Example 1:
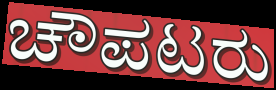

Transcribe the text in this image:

ಚೌಪಟರು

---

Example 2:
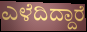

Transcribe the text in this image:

ಎಳೆದಿದ್ದಾರೆ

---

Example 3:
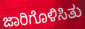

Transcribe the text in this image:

ಜಾರಿಗೊಳಿಸಿತು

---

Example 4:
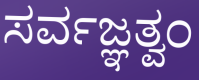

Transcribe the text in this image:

ಸರ್ವಜ್ಞತ್ವಂ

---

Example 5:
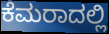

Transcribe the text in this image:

ಕೆಮರಾದಲ್ಲಿ